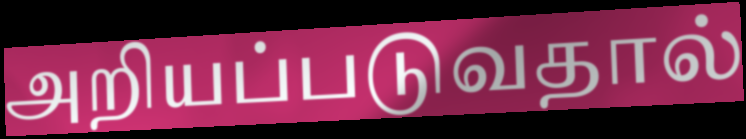
அறியப்படுவதால்